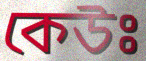
কেউঃ